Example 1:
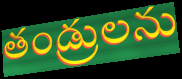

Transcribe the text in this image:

తండ్రులను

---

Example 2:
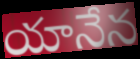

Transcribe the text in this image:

యానేన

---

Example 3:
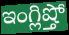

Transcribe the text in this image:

ఇంగ్లిష్తో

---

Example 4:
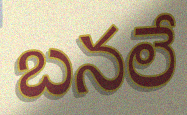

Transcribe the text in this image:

బనలే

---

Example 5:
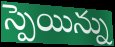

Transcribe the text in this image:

స్పెయిన్ను